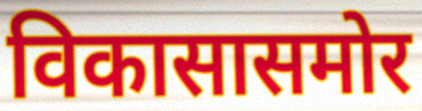
विकासासमोर